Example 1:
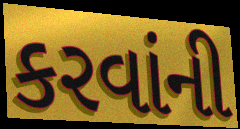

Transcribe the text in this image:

કરવાંની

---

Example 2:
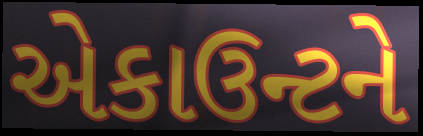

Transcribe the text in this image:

એકાઉન્ટને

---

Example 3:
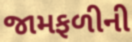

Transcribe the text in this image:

જામફળીની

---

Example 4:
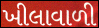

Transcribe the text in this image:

ખીલાવાળી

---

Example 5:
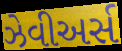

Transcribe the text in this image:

ઝેવીઅર્સ